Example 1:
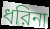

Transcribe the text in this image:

ধরিনা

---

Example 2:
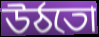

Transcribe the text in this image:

উঠতো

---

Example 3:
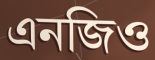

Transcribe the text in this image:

এনজিও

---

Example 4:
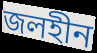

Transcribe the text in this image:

জলহীন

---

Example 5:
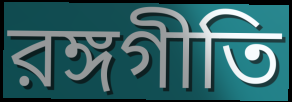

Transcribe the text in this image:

রঙ্গগীতি